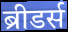
ब्रीडर्स